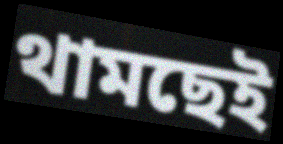
থামছেই